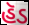
હૅડ